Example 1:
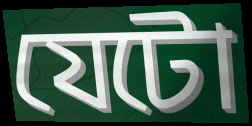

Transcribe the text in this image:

যেটো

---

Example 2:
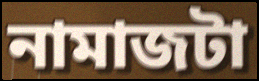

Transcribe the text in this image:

নামাজটা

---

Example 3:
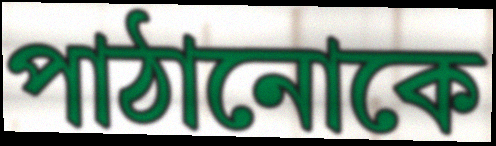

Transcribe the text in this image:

পাঠানোকে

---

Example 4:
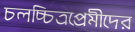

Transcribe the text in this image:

চলচ্চিত্রপ্রেমীদের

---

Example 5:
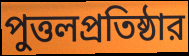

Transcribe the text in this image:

পুত্তলপ্রতিষ্ঠার